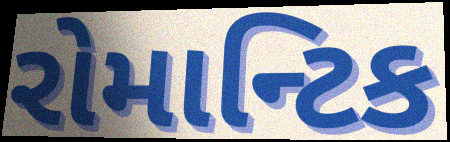
રોમાન્ટિક